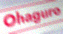
Ohaguro